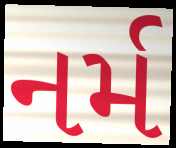
નર્મ